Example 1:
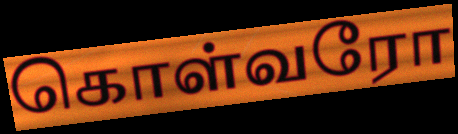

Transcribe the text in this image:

கொள்வரோ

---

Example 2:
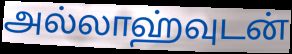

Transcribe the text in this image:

அல்லாஹ்வுடன்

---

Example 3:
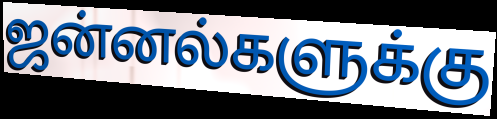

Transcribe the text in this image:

ஜன்னல்களுக்கு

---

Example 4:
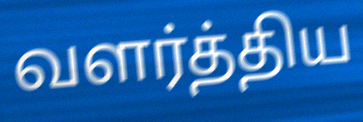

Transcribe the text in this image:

வளர்த்திய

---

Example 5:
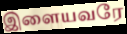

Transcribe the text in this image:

இளையவரே